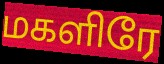
மகளிரே